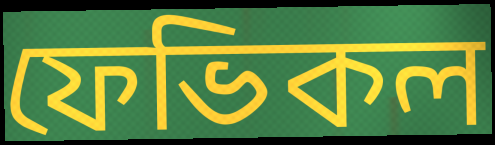
ফেভিকল